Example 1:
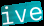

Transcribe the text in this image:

ive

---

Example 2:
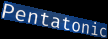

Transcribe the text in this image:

Pentatonic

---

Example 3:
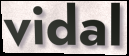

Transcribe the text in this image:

vidal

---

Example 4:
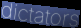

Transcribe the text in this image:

dictators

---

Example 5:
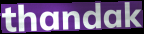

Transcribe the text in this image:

thandak